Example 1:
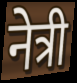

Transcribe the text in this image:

नेत्री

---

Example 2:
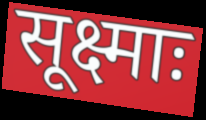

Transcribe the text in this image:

सूक्ष्माः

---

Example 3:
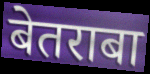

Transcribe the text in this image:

बेतराबा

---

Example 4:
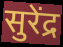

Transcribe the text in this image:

सुरेंद्र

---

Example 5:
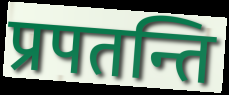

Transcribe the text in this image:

प्रपतन्ति